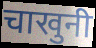
चाखुनी